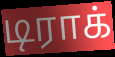
டிராக்